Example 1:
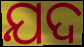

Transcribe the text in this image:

ଯଦ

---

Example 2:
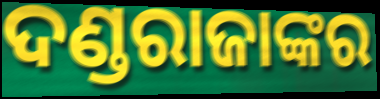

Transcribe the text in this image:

ଦଣ୍ଡରାଜାଙ୍କର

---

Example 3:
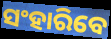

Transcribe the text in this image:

ସଂହାରିବେ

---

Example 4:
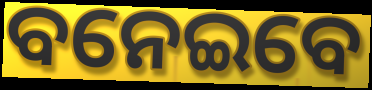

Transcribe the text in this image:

ବନେଇବେ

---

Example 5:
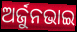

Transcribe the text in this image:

ଅର୍ଜୁନଭାଇ